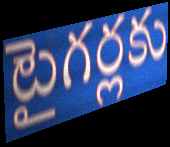
టైగర్లకు